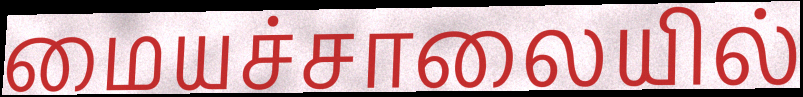
மையச்சாலையில்